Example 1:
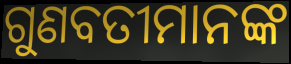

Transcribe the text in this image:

ଗୁଣବତୀମାନଙ୍କ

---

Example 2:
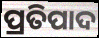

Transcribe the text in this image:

ପ୍ରତିପାଦ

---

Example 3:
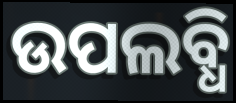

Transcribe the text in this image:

ଉପଲବ୍ଧି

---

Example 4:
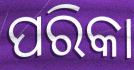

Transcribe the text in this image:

ପରିକା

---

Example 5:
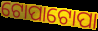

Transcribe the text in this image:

ଟୋପାଟୋପା